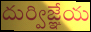
దుర్విజ్ఞేయ